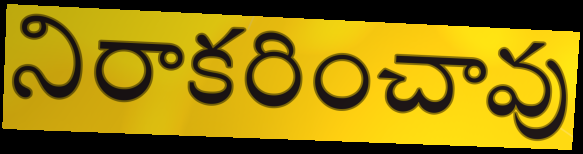
నిరాకరించావు